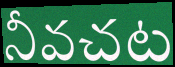
నీవచట